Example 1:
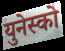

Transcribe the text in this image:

युनेस्को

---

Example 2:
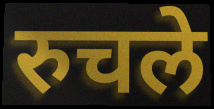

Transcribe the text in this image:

रुचले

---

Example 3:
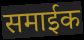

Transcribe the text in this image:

समाईक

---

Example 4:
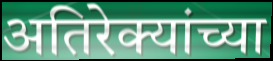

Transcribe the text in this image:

अतिरेक्‍यांच्या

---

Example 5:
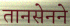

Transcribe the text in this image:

तानसेनने